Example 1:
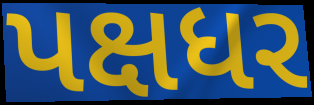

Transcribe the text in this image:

પક્ષધર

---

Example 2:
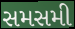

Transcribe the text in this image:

સમસમી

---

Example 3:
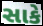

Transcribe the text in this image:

સાકે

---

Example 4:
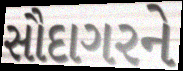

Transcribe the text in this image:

સૌદાગરને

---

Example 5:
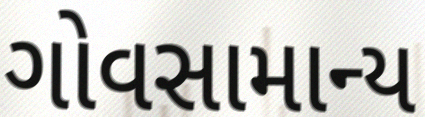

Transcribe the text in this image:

ગોવસામાન્ય